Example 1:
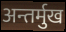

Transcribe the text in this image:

अन्तर्मुख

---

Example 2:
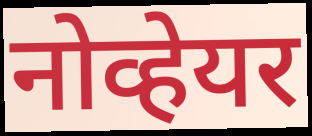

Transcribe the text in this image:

नोव्हेयर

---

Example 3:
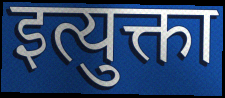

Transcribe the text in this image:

इत्युक्ता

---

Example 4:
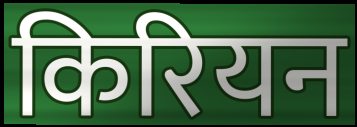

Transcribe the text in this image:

किरियन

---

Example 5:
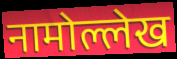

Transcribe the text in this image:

नामोल्लेख